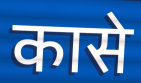
कासे